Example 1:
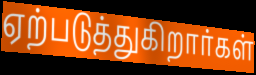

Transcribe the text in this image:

ஏற்படுத்துகிறார்கள்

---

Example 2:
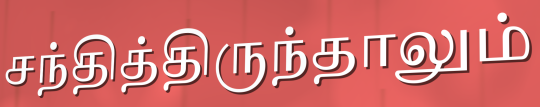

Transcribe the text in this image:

சந்தித்திருந்தாலும்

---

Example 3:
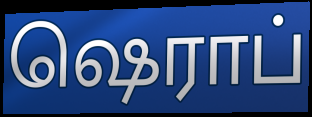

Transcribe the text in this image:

ஷெராப்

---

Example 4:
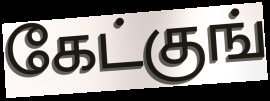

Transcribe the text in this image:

கேட்குங்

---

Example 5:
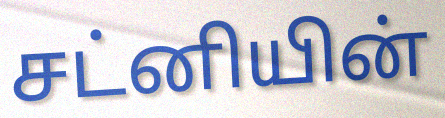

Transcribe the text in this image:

சட்னியின்